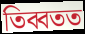
তিব্বতত